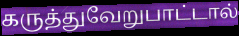
கருத்துவேறுபாட்டால்